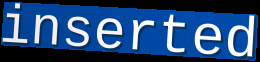
inserted